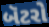
બૅટરો